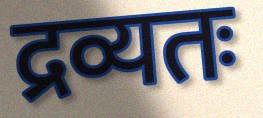
द्रव्यतः